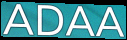
ADAA